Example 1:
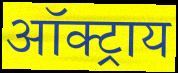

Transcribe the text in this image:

ऑक्ट्राय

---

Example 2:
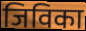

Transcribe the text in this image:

जिविका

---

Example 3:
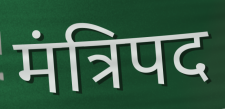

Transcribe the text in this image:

मंत्रिपद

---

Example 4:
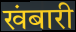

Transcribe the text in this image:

खंबारी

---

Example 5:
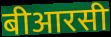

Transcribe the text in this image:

बीआरसी